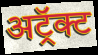
अट्रॅक्ट